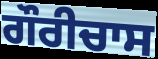
ਗੌਰੀਚਾਸ